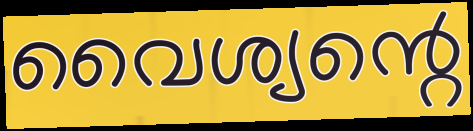
വൈശ്യന്റെ